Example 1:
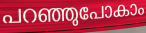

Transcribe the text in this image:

പറഞ്ഞുപോകാം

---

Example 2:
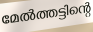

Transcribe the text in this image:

മേൽത്തട്ടിന്റെ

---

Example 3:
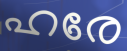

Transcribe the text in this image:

ഹരേ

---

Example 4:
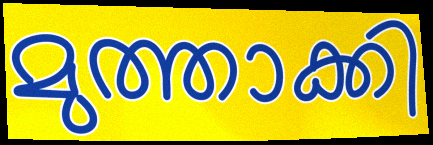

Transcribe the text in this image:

മുത്താക്കി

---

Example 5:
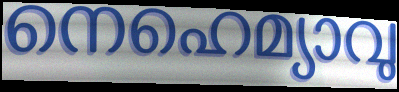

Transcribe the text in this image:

നെഹെമ്യാവു